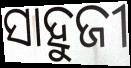
ସାହୁଜୀ